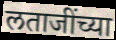
लताजींच्या